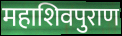
महाशिवपुराण